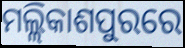
ମଲ୍ଲିକାଶପୁରରେ